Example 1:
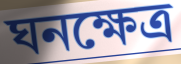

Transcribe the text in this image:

ঘনক্ষেত্র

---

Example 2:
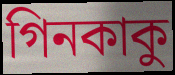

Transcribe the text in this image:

গিনকাকু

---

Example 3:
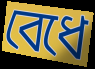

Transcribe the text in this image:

বেধে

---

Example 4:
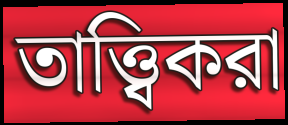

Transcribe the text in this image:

তাত্ত্বিকরা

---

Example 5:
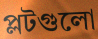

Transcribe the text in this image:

প্লটগুলো